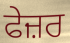
ਫੇਜ਼ਰ